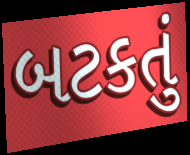
બટકતું